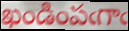
ఖండింపఁగాఁ